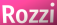
Rozzi